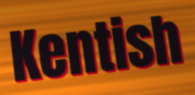
Kentish